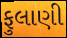
ફુલાણી